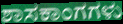
ಶಾಸಕಾಂಗಗಳು